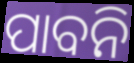
ପାବନି